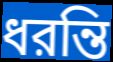
ধরন্তি